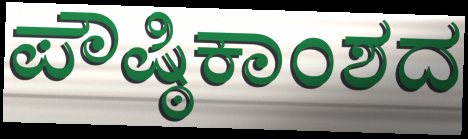
ಪೌಷ್ಠಿಕಾಂಶದ